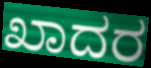
ಖಾದರ